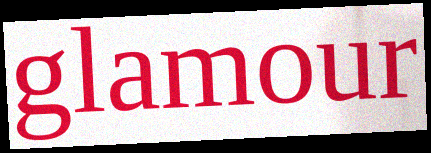
glamour